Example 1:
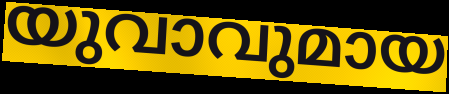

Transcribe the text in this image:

യുവാവുമായ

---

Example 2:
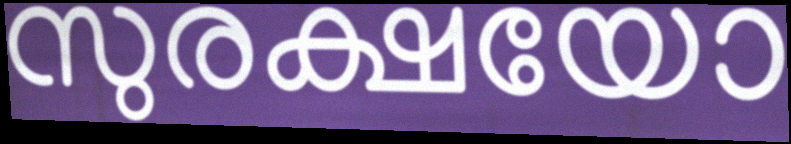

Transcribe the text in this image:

സുരക്ഷയോ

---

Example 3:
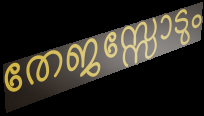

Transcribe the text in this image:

തേജസ്സോടും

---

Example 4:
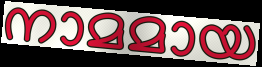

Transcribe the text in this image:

നാമമായ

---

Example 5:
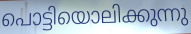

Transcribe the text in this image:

പൊട്ടിയൊലിക്കുന്നു